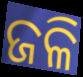
ଜଳି